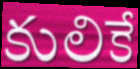
కులికే